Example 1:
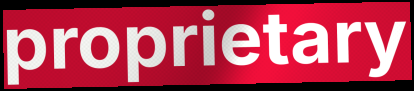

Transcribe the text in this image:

proprietary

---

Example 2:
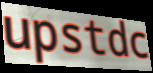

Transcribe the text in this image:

upstdc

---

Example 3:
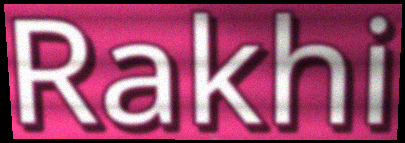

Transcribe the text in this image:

Rakhi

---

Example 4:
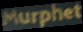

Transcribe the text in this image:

Murphet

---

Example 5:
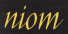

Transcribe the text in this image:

niom